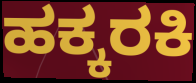
ಹಕ್ಕರಕಿ